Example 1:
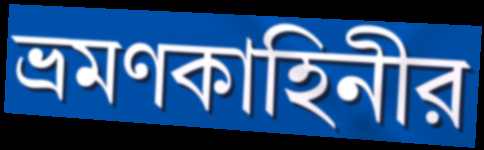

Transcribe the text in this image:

ভ্রমণকাহিনীর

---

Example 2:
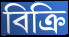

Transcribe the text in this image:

বিক্রি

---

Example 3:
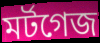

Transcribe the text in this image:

মর্টগেজ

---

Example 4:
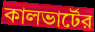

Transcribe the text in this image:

কালভার্টের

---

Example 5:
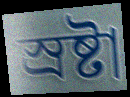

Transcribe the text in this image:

স্রষ্টা